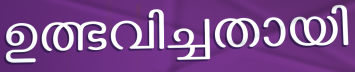
ഉത്ഭവിച്ചതായി